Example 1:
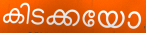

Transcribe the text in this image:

കിടക്കയോ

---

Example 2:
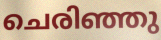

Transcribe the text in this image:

ചെരിഞ്ഞു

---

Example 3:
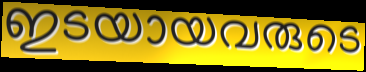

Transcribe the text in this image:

ഇടയായവരുടെ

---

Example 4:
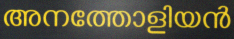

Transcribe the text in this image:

അനത്തോളിയൻ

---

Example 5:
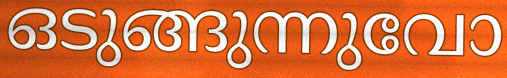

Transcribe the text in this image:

ഒടുങ്ങുന്നുവോ